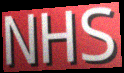
NHS